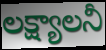
లక్ష్యాలనీ